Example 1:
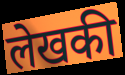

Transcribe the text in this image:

लेखकी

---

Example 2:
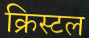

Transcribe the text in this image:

क्रिस्टल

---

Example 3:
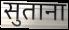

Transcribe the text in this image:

सुताना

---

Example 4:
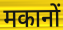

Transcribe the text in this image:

मकानों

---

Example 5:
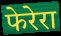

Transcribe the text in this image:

फेरेरा